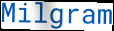
Milgram